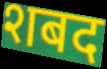
शबद